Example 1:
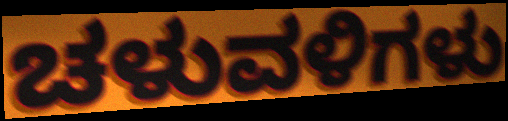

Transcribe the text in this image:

ಚಳುವಳಿಗಳು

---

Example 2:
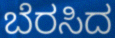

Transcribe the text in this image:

ಬೆರಸಿದ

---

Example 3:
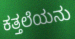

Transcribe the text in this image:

ಕತ್ತಲೆಯನು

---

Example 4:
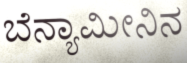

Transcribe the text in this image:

ಬೆನ್ಯಾಮೀನಿನ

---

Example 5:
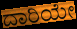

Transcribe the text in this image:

ದಾರಿಯೇ